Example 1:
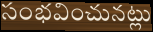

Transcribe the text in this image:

సంభవించునట్లు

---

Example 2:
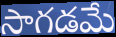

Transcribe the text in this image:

సాగడమే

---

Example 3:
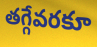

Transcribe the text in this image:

తగ్గేవరకూ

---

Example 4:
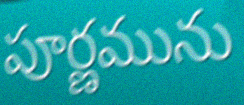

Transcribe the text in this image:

పూర్ణమును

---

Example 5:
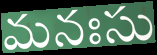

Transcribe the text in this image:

మనఃసు